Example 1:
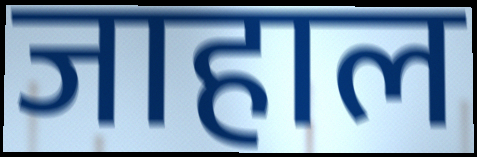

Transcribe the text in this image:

जाहाल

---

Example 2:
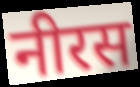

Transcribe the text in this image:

नीरस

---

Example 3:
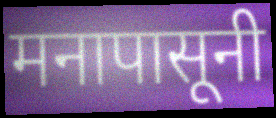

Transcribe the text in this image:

मनापासूनी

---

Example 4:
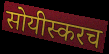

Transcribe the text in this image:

सोयीस्करच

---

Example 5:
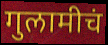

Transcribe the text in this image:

गुलामीचं